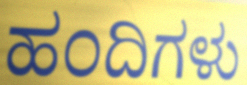
ಹಂದಿಗಳು